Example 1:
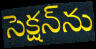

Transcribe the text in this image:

సెక్షన్‌ను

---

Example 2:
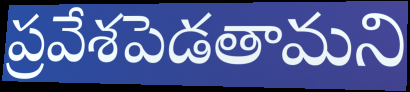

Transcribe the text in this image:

ప్రవేశపెడతామని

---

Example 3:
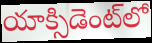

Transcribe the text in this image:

యాక్సిడెంట్‌లో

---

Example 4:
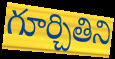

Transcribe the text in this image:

గూర్చితిని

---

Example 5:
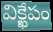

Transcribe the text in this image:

విక్ఖేపం